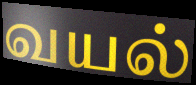
வயல்